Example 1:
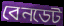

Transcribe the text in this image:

বেনডেট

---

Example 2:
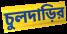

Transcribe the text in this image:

চুলদাড়ির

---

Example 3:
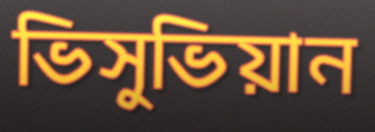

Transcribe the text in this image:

ভিসুভিয়ান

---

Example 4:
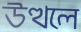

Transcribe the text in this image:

উত্থলে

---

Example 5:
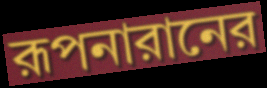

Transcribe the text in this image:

রূপনারানের